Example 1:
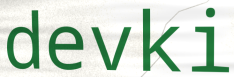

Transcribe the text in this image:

devki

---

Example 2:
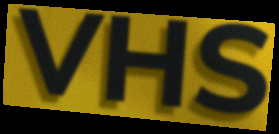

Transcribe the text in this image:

VHS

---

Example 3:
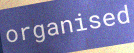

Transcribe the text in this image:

organised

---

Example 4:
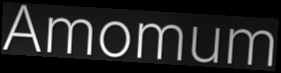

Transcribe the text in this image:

Amomum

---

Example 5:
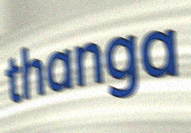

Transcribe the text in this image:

thanga